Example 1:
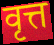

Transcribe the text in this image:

वृत्त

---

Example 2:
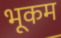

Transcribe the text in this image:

भूकम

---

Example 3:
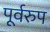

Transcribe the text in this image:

पूर्वरुप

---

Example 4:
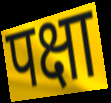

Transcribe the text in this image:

पक्षा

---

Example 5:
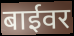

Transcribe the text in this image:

बाईवर